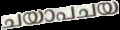
ചയാപചയ